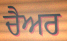
ਚੈਅਰ